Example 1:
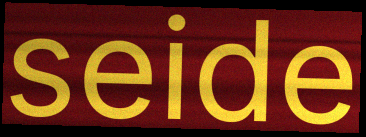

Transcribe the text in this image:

seide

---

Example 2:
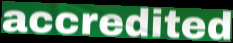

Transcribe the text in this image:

accredited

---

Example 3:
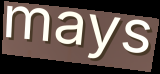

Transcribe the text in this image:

mays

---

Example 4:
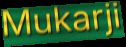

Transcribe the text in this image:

Mukarji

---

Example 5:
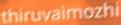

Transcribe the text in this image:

thiruvaimozhi